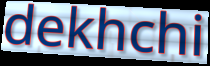
dekhchi